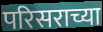
परिसराच्या